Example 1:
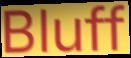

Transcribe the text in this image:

Bluff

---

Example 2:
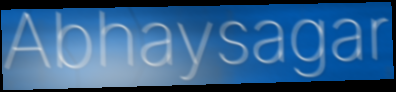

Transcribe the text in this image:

Abhaysagar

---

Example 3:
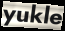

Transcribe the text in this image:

yukle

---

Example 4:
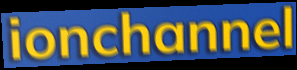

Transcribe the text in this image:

ionchannel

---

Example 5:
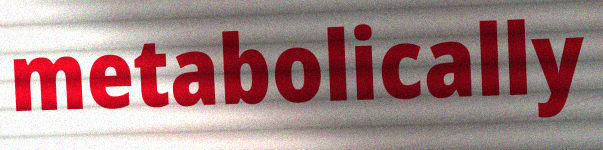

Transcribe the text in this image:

metabolically